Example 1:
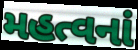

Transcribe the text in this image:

મહત્વનાં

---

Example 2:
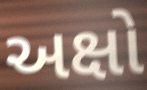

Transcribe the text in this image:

અક્ષો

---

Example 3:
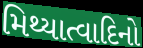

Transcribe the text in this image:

મિથ્યાત્વાદિનો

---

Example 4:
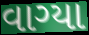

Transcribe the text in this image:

વાગ્યા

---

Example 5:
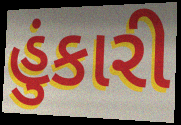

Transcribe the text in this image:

હુંકારી